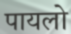
पायलो